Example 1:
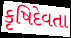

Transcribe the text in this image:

કૃષિદેવતા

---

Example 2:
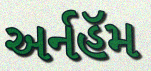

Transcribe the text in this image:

અર્નહૅમ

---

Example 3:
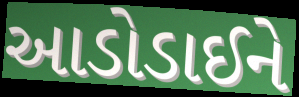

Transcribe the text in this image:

આડોડાઈને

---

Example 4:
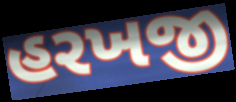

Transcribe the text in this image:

હરખજી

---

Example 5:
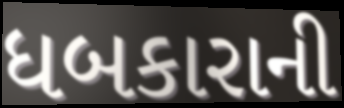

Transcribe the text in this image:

ધબકારાની